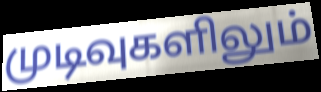
முடிவுகளிலும்